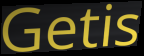
Getis